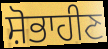
ਸ਼ੋਭਾਹੀਣ